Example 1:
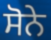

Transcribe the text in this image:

ਸੋਨੇ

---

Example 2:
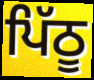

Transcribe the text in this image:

ਪਿੱਠੂ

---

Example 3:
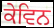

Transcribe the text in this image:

ਕੇਵਿਨ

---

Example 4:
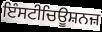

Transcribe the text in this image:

ਇੰਸਟੀਚਿਊਸ਼ਨਜ਼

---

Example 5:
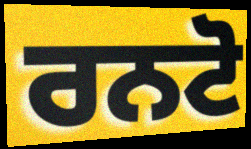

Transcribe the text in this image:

ਰਨਟੋ